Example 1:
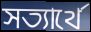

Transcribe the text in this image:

সত্যার্থে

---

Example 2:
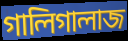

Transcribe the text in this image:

গালিগালাজ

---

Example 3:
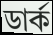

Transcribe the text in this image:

ডার্ক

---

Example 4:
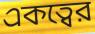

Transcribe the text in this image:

একত্বের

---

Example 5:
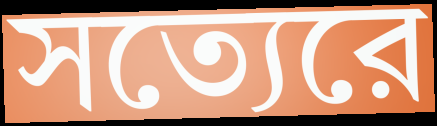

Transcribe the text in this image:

সত্যেরে